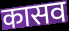
कासव